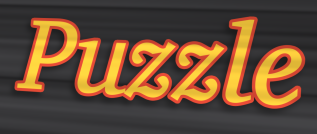
Puzzle